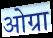
ओग्रा